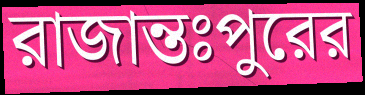
রাজান্তঃপুরের